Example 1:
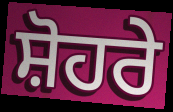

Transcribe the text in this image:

ਸ਼ੋਹਰੇ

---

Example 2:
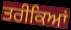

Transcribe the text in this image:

ਤਰੀਕਿਆਂ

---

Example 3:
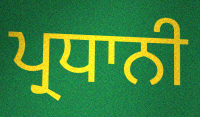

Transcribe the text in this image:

ਪ੍ਰਧਾਨੀ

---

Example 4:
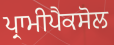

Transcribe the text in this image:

ਪ੍ਰਾਮੀਪੈਕਸੋਲ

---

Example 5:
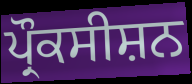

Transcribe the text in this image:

ਪ੍ਰੌਕਸੀਸ਼ਨ